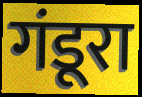
गंडूरा